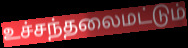
உச்சந்தலைமட்டும்